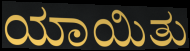
ಯಾಯಿತು